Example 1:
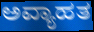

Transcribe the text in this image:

ಅವ್ಯಾಹತ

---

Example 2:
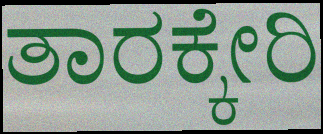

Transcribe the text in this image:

ತಾರಕ್ಕೇರಿ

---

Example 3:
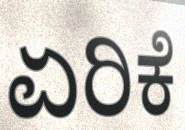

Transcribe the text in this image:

ಏರಿಕೆ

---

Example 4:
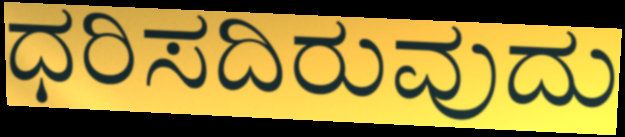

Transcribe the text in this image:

ಧರಿಸದಿರುವುದು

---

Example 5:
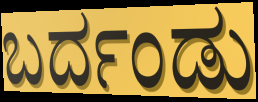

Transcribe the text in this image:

ಬರ್ದಂಡು